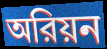
অরিয়ন